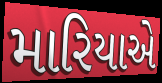
મારિયાએ